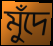
মুঁদে